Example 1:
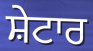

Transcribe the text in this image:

ਸ਼ੇਟਾਰ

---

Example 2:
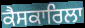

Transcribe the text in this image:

ਕੈਸਕਾਰਿਲਾ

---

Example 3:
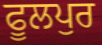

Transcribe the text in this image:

ਫੂਲਪੁਰ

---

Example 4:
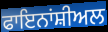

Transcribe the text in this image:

ਫਾਇਨਾਂਸ਼ੀਅਲ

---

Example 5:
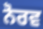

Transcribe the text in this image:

ਨੋਰਵ